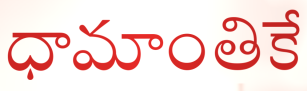
ధామాంతికే